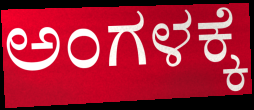
ಅಂಗಳಕ್ಕೆ